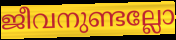
ജീവനുണ്ടല്ലോ